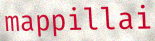
mappillai